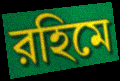
রহিমে